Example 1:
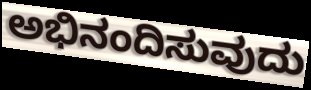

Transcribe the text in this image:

ಅಭಿನಂದಿಸುವುದು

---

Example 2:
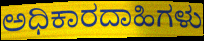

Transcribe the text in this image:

ಅಧಿಕಾರದಾಹಿಗಳು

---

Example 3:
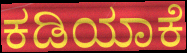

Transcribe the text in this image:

ಕಡಿಯಾಕೆ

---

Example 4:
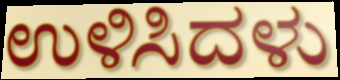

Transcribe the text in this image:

ಉಳಿಸಿದಳು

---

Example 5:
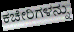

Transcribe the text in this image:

ಕಚೇರಿಗಳನ್ನು